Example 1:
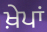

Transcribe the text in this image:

ਖ਼ੇਪਾਂ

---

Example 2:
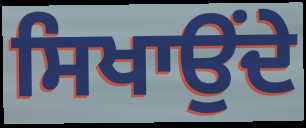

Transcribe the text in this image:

ਸਿਖਾਉਂਦੇ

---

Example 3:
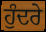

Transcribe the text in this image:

ਹੁੰਦਰੇ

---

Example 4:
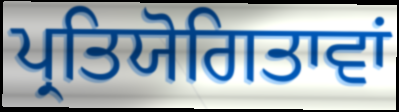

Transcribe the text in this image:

ਪ੍ਰਤਿਯੋਗਿਤਾਵਾਂ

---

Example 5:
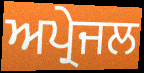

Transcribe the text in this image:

ਅਪ੍ਰੇਜਲ